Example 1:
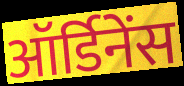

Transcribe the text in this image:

ऑर्डिनेंस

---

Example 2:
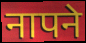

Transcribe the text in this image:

नापने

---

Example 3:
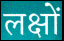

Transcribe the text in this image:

लक्षों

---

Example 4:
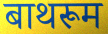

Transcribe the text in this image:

बाथरूम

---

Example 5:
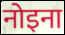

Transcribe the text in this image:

नोइना